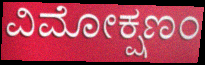
ವಿಮೋಕ್ಷಣಂ